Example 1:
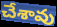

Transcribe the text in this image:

చేశావు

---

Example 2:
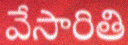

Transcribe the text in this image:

వేసారితి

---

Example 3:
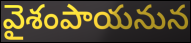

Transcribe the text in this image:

వైశంపాయనున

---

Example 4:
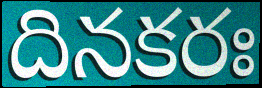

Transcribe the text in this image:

దినకరః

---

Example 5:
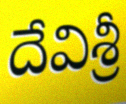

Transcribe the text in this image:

దేవిశ్రీ